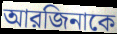
আরজিনাকে